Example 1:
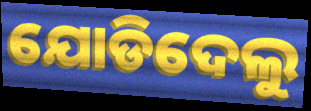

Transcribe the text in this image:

ଯୋଡିଦେଲୁ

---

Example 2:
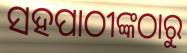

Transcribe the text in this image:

ସହପାଠୀଙ୍କଠାରୁ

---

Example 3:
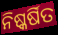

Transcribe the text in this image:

ନିଷ୍କର୍ଷିତ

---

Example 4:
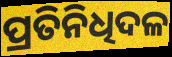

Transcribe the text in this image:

ପ୍ରତିନିଧିଦଳ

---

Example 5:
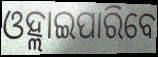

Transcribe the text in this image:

ଓହ୍ଲାଇପାରିବେ